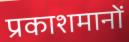
प्रकाशमानों